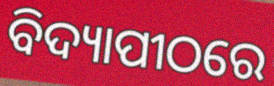
ବିଦ୍ୟାପୀଠରେ